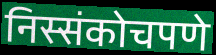
निस्संकोचपणे